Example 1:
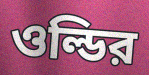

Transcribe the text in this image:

ওল্ডির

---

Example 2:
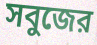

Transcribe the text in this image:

সবুজের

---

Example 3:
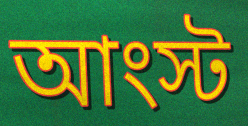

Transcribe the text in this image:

আংস্ট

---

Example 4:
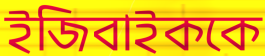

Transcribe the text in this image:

ইজিবাইককে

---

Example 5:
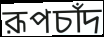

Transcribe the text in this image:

রূপচাঁদ